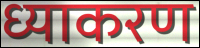
ध्याकरण